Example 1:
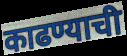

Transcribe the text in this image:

काढण्याची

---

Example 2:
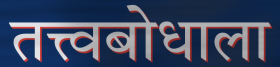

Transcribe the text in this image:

तत्त्वबोधाला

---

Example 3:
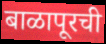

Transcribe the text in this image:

बाळापूरची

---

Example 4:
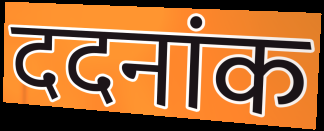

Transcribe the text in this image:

ददनांक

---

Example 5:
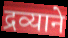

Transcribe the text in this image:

द्रव्याने